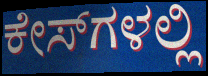
ಕೇಸ್‌ಗಳಲ್ಲಿ